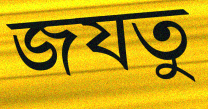
জযতু